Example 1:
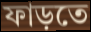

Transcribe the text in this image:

ফাড়তে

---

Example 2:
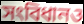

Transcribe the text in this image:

সংবিধানও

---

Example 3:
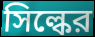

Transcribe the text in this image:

সিল্কের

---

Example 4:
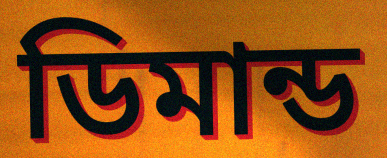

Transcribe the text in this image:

ডিমান্ড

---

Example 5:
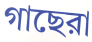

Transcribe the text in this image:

গাছেরা